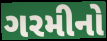
ગરમીનો